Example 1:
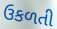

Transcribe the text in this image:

ઉકળતી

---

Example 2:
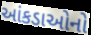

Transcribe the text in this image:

આંકડાઓનો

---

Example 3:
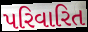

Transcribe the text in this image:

પરિવારિત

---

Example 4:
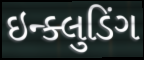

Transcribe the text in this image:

ઇન્ક્લુડિંગ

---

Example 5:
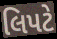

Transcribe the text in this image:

લિપટે